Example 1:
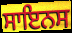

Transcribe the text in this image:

ਸਾਇਨਸ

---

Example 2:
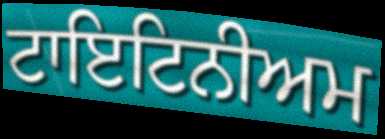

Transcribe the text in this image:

ਟਾਇਟਿਨੀਅਮ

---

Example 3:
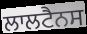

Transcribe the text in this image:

ਲਾਲਟੈਨਸ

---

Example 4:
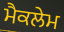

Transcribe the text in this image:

ਮੈਕਲੇਮ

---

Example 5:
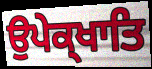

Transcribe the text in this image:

ਉਪੇਕ੍ਖਾਤਿ